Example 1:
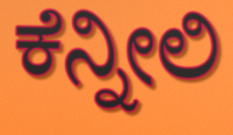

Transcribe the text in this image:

ಕೆನ್ನೀಲಿ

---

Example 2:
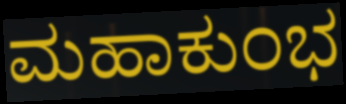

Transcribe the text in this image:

ಮಹಾಕುಂಭ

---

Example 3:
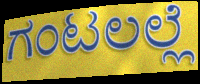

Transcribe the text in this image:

ಗಂಟಲಲ್ಲೆ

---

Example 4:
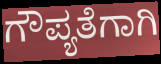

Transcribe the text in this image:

ಗೌಪ್ಯತೆಗಾಗಿ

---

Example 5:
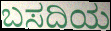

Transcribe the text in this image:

ಬಸದಿಯ